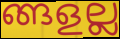
ങ്ങളല്ല